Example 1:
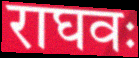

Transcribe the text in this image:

राघवः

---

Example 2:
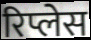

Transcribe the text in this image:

रिप्लेस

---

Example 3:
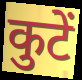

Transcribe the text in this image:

कुटें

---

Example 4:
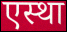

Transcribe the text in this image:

एस्था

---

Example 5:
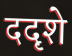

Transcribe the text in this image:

ददृशे